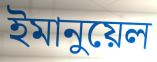
ইমানুয়েল